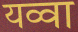
यव्वा